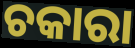
ଚକାରା